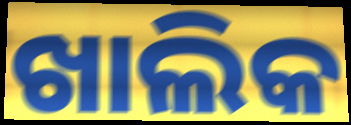
ଖାଲିକ